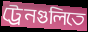
ট্রেনগুলিতে